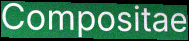
Compositae